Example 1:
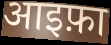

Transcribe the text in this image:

आइफ़ा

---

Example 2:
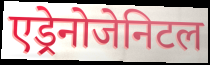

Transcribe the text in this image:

एड्रेनोजेनिटल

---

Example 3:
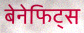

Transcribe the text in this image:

बेनेफिट्स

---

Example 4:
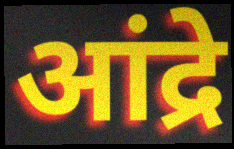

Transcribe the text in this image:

आंद्रे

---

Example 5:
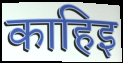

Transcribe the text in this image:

काहिइ